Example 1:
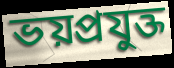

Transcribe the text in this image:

ভয়প্রযুক্ত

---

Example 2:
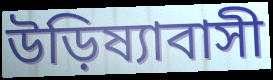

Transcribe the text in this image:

উড়িষ্যাবাসী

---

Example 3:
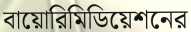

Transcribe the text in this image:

বায়োরিমিডিয়েশনের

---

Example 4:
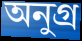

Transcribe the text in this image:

অনুগ্র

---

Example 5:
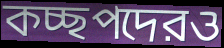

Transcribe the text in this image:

কচ্ছপদেরও